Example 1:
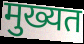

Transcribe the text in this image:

मुख्‍यत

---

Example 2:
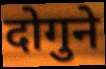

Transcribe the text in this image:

दोगुने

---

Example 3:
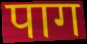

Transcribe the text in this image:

पाग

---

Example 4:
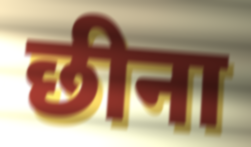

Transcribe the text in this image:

छीना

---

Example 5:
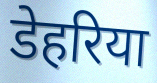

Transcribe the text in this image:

डेहरिया